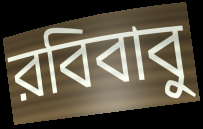
রবিবাবু